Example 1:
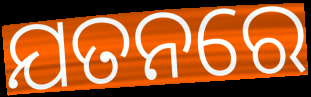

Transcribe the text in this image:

ଯତନରେ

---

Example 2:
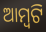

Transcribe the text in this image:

ଆମ୍ୱଟି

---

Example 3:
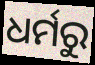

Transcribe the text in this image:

ଧର୍ମରୁ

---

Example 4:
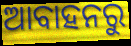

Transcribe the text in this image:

ଆବାହନରୁ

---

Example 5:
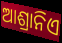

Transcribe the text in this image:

ଆଶ୍ରାନିଏ